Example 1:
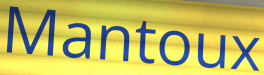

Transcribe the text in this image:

Mantoux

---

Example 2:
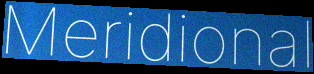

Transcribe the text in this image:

Meridional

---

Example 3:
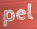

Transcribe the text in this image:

pel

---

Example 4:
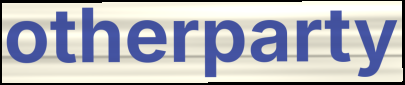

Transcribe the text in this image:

otherparty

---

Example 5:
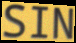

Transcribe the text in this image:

SIN